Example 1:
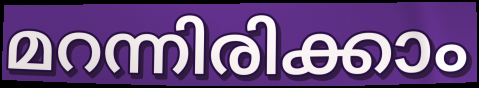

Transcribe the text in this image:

മറന്നിരിക്കാം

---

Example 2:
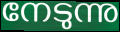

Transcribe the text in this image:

നേടുന്നു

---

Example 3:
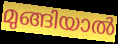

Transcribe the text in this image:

മുങ്ങിയാൽ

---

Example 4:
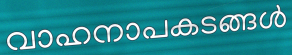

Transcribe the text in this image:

വാഹനാപകടങ്ങൾ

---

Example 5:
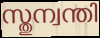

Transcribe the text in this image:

സ്തുന്വന്തി